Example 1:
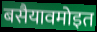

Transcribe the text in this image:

बसैयावमोइत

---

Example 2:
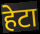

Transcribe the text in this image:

हेटा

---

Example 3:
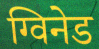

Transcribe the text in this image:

ग्विनेड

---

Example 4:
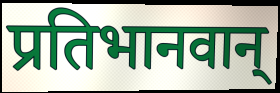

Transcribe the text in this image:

प्रतिभानवान्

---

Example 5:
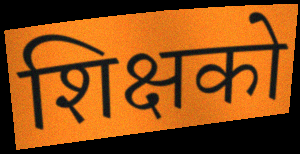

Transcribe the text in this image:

शिक्षको